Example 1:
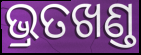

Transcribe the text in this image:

ଭ୍ରତଖଣ୍ଡ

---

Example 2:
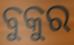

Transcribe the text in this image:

ବୁକୁର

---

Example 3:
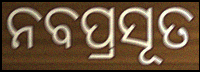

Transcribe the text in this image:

ନବପ୍ରସୂତ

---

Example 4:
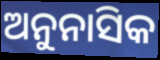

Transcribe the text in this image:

ଅନୁନାସିକ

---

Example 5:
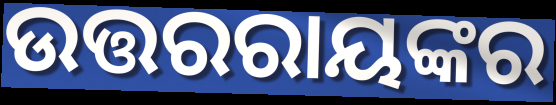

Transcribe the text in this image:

ଉତ୍ତରରାୟଙ୍କର